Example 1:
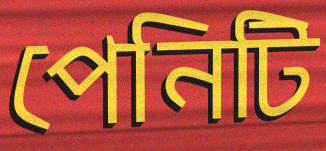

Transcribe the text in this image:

পেনিটি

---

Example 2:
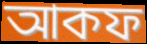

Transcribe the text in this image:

আকফ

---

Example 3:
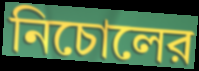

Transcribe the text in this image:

নিচোলের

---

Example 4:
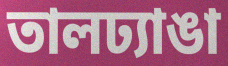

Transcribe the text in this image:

তালঢ্যাঙা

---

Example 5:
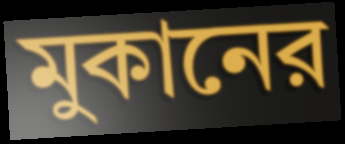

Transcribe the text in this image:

মুকানের